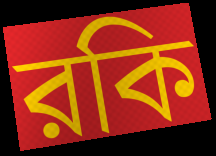
রকি